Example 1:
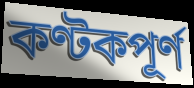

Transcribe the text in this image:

কণ্টকপূর্ণ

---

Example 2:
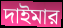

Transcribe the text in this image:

দাইমার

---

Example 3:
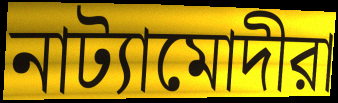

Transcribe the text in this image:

নাট্যামোদীরা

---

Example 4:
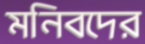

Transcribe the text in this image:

মনিবদের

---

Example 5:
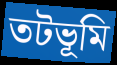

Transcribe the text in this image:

তটভূমি